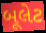
બૂલેટ